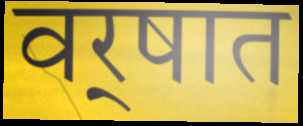
वर्षात